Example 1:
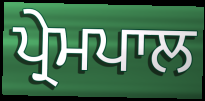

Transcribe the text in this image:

ਪ੍ਰੇਮਪਾਲ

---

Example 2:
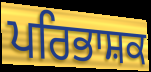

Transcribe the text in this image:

ਪਰਿਭਾਸ਼ਕ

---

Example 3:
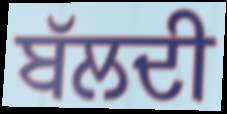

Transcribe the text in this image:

ਬੱਲਦੀ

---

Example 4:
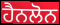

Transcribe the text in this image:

ਹੈਨਲੋਨ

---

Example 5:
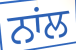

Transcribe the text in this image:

ਨਾਂਲ